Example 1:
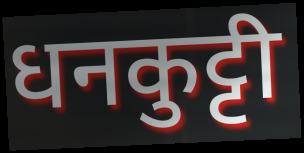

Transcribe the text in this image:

धनकुट्टी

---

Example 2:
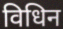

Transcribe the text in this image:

विधिन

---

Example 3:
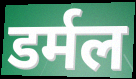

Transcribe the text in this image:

डर्मल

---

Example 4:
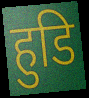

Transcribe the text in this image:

हुडि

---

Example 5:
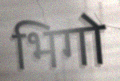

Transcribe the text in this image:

भिगो